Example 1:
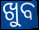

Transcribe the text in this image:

ଖୁବ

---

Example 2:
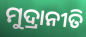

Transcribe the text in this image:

ମୁଦ୍ରାନୀତି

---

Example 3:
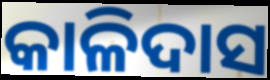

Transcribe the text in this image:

କାଳିଦାସ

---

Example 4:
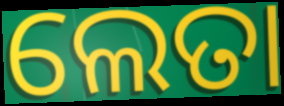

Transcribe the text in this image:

ଲେତା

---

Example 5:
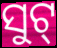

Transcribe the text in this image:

ସୁଟ୍